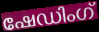
ഷേഡിംഗ്